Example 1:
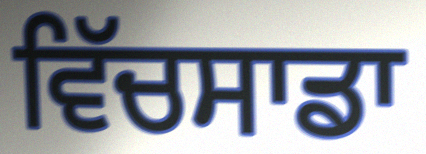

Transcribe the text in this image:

ਵਿੱਚਸਾਡਾ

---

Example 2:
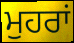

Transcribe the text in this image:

ਮੁਹਰਾਂ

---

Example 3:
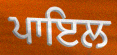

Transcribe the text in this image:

ਪਾਇਲ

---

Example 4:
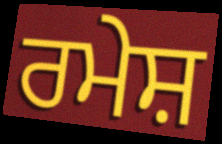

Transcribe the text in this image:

ਰਮੇਸ਼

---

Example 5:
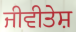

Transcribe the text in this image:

ਜੀਵੀਤੇਸ਼